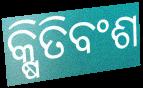
କ୍ଷିତିବଂଶ